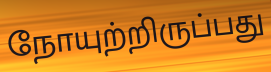
நோயுற்றிருப்பது